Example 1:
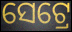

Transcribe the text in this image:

ସେଟ୍ରେ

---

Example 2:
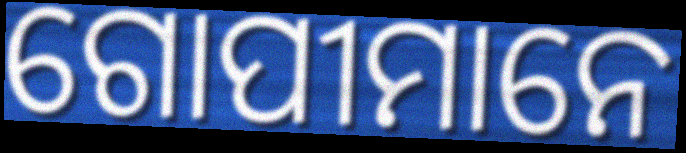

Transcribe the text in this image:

ଗୋପୀମାନେ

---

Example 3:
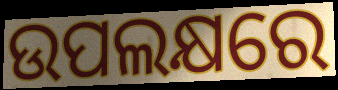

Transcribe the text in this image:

ଉପଲକ୍ଷରେ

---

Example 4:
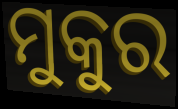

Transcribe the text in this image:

ମୁକୁର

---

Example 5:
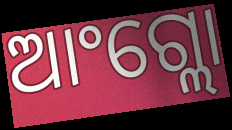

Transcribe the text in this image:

ଆଂଗ୍ଲୋ